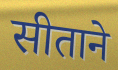
सीताने